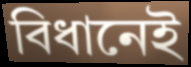
বিধানেই